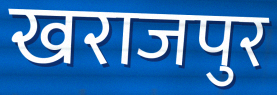
खराजपुर